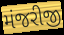
મંજરીજી